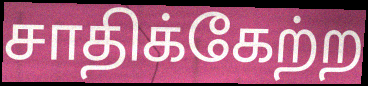
சாதிக்கேற்ற